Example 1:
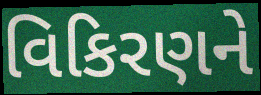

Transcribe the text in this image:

વિકિરણને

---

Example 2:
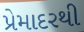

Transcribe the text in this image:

પ્રેમાદરથી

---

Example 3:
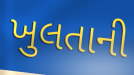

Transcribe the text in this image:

ખુલતાની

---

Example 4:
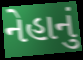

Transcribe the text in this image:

નેહાનું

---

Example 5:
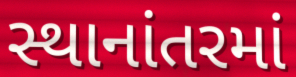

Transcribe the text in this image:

સ્થાનાંતરમાં